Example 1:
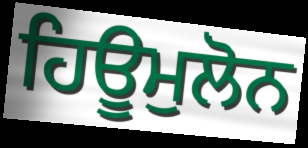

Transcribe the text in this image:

ਹਿਊਮੁਲੋਨ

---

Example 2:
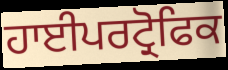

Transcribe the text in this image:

ਹਾਈਪਰਟ੍ਰੋਫਿਕ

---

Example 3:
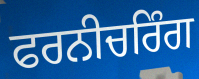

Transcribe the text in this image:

ਫਰਨੀਚਰਿੰਗ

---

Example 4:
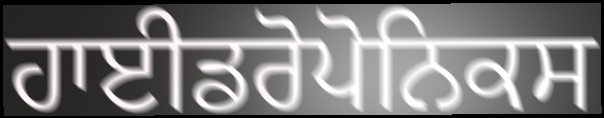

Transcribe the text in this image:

ਹਾਈਡਰੋਪੋਨਿਕਸ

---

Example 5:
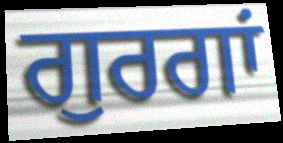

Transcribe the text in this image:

ਗੁਰਗਾਂ